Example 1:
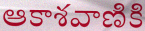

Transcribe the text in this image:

ఆకాశవాణికి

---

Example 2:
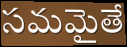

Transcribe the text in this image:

సమమైతే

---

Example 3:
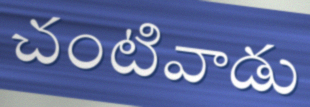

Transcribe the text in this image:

చంటివాడు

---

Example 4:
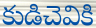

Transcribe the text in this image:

కుడిచెవికి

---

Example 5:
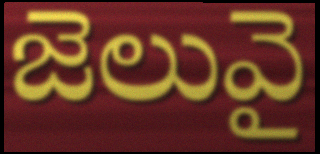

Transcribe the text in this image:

జెలువై